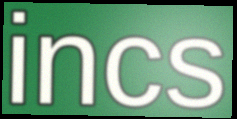
incs